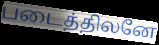
படைத்திலனே